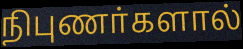
நிபுணர்களால்